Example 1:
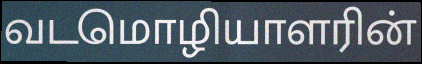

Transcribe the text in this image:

வடமொழியாளரின்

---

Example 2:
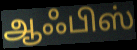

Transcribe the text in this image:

ஆஃபிஸ்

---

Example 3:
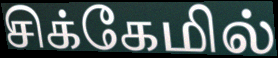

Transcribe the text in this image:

சிக்கேமில்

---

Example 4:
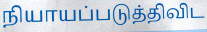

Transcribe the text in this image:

நியாயப்படுத்திவிட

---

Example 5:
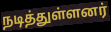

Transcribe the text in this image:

நடித்துள்ளனர்